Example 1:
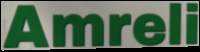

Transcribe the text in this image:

Amreli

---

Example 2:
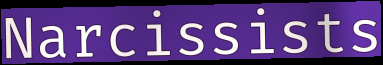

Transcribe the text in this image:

Narcissists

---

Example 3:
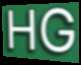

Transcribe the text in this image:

HG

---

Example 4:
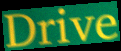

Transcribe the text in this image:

Drive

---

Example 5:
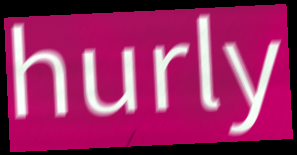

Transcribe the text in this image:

hurly